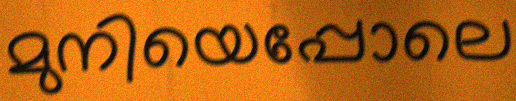
മുനിയെപ്പോലെ